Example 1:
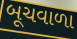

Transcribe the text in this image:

બૂચવાળા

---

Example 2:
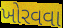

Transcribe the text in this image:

ખોરવવા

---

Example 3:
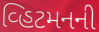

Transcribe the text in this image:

વ્હિટમનની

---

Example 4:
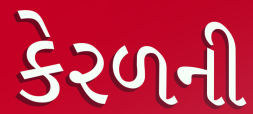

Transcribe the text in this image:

કેરળની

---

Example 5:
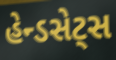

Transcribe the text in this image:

હેન્ડસેટ્સ